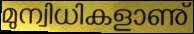
മുന്വിധികളാണു്